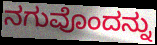
ನಗುವೊಂದನ್ನು